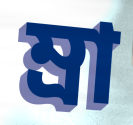
ম্রা